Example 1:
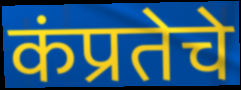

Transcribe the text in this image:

कंप्रतेचे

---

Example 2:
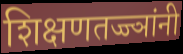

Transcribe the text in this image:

शिक्षणतज्ज्ञांनी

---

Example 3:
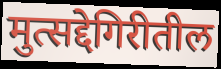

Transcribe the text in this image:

मुत्सद्देगिरीतील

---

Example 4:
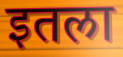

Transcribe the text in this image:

इतला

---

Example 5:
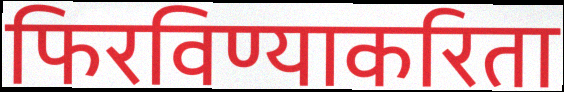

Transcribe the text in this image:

फिरविण्याकरिता